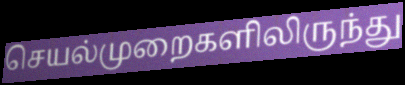
செயல்முறைகளிலிருந்து